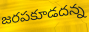
జరపకూడదన్న